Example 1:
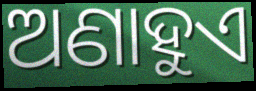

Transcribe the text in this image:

ଅଣାହୁଏ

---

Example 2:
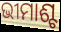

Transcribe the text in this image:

ଭୀମାଶ୍ଚ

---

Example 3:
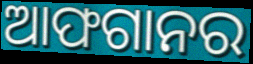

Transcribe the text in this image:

ଆଫଗାନର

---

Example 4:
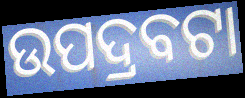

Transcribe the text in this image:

ଉପଦ୍ରବଟା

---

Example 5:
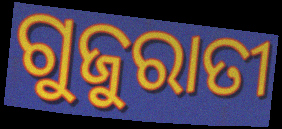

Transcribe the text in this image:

ଗୁଜୁରାତୀ